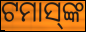
ଟମାସ୍‌ଙ୍କ